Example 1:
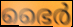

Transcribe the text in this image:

ഭൈർ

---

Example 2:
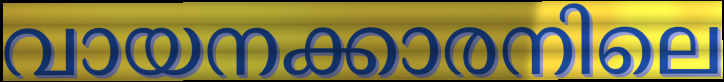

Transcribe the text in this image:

വായനക്കാരനിലെ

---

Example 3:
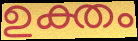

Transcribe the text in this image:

ഉക്തം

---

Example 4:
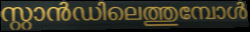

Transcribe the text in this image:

സ്റ്റാൻഡിലെത്തുമ്പോൾ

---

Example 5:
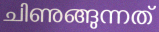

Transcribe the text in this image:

ചിണുങ്ങുന്നത്